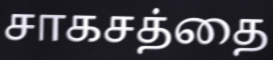
சாகசத்தை